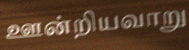
ஊன்றியவாறு